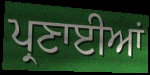
ਪ੍ਰਣਾਈਆਂ